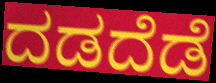
ದಡದೆಡೆ